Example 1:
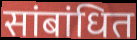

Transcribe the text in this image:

सांबांधित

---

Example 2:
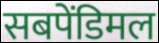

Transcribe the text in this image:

सबपेंडिमल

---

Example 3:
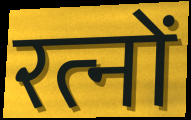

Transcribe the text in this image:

रत्‍नों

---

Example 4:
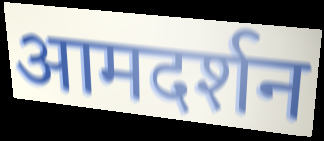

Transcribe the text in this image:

आमदर्शन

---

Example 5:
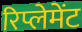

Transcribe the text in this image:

रिप्लेमेंट